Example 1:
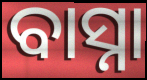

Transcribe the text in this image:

ବାସ୍ନା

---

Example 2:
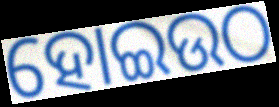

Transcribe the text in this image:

ହୋଇଉଠ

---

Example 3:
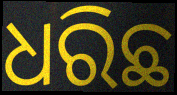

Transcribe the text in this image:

ଧରିଛ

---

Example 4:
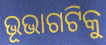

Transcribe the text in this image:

ଭୂଭାଗଟିକୁ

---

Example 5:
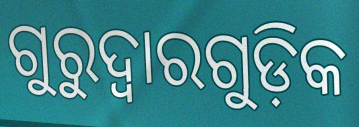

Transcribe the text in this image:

ଗୁରୁଦ୍ବାରଗୁଡ଼ିକ